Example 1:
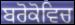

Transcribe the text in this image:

ਬਰੋਕੋਵਿਚ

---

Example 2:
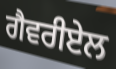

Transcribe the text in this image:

ਗੈਵਰੀਏਲ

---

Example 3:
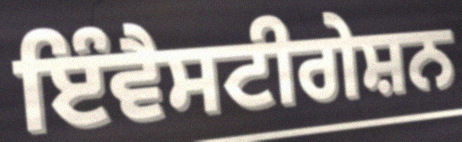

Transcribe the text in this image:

ਇੰਵੈਸਟੀਗੇਸ਼ਨ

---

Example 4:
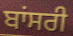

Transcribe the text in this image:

ਬਾਂਸਰੀ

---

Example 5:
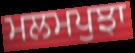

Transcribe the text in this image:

ਮਲਮਪੁਝਾ